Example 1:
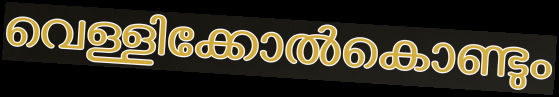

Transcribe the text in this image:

വെള്ളിക്കോൽകൊണ്ടും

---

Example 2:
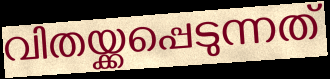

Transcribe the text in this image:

വിതയ്ക്കപ്പെടുന്നത്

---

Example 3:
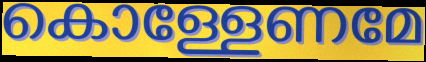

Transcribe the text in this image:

കൊള്ളേണമേ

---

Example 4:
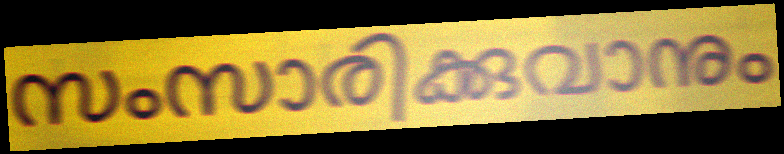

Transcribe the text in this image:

സംസാരിക്കുവാനും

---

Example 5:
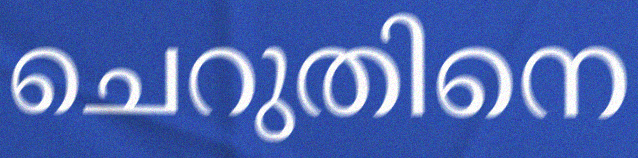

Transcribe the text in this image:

ചെറുതിനെ